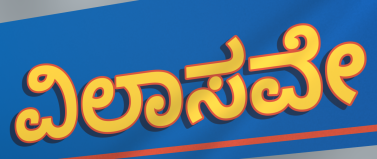
ವಿಲಾಸವೇ